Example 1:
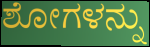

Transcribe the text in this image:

ಶೋಗಳನ್ನು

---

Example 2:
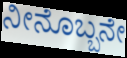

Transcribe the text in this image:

ನೀನೊಬ್ಬನೇ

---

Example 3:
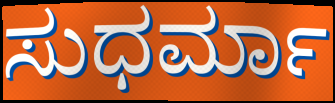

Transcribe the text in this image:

ಸುಧರ್ಮಾ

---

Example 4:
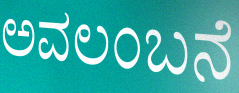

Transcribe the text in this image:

ಅವಲಂಬನೆ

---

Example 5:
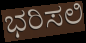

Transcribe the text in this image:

ಭರಿಸಲಿ